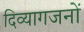
दिव्यागजनों